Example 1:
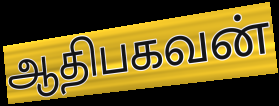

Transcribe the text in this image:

ஆதிபகவன்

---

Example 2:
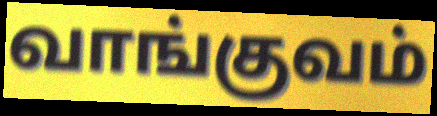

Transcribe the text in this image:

வாங்குவம்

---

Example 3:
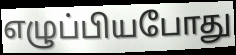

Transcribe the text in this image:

எழுப்பியபோது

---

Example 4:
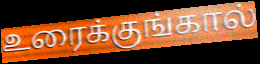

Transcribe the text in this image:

உரைக்குங்கால்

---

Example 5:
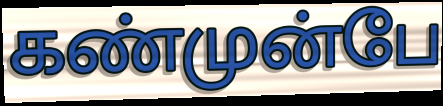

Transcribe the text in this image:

கண்முன்பே